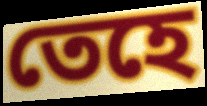
তেহে